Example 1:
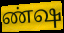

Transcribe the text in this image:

ண்ஷ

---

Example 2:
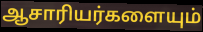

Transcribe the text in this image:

ஆசாரியர்களையும்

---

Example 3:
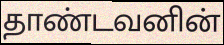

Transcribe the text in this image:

தாண்டவனின்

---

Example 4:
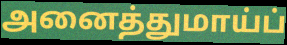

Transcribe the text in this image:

அனைத்துமாய்ப்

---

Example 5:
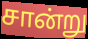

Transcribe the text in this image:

சான்று